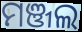
ମଞ୍ଜଲ